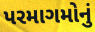
પરમાગમોનું